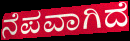
ನೆಪವಾಗಿದೆ